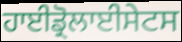
ਹਾਈਡ੍ਰੋਲਾਈਸੇਟਸ